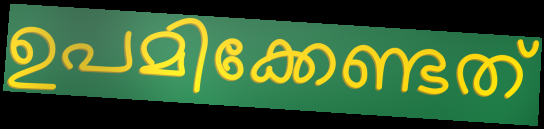
ഉപമിക്കേണ്ടത്